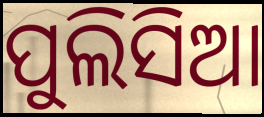
ପୁଲିସିଆ